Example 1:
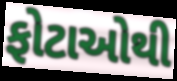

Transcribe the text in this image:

ફોટાઓથી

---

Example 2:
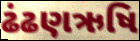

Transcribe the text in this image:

ઢંઢણઋષિ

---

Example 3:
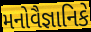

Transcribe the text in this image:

મનોવૈજ્ઞાનિકે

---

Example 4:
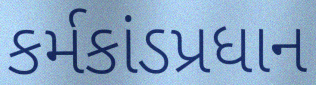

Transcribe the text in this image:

કર્મકાંડપ્રધાન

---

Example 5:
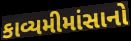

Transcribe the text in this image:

કાવ્યમીમાંસાનો